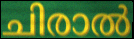
ചിരാൽ